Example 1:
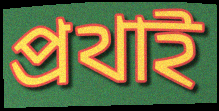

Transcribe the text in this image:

প্রথাই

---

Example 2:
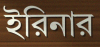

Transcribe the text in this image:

ইরিনার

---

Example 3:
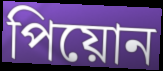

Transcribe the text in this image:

পিয়োন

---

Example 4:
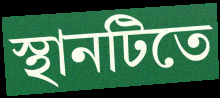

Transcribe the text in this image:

স্থানটিতে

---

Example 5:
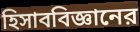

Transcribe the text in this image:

হিসাববিজ্ঞানের